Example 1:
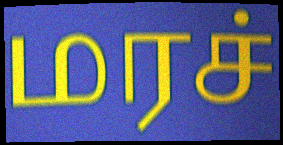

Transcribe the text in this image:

மரச்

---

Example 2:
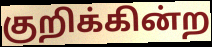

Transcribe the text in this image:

குறிக்கின்ற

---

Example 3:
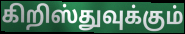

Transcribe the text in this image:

கிறிஸ்துவுக்கும்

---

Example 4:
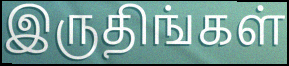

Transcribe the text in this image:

இருதிங்கள்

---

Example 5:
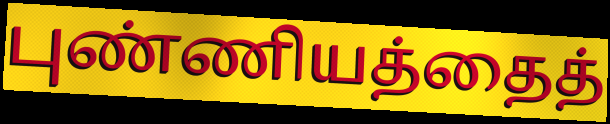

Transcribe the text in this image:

புண்ணியத்தைத்